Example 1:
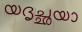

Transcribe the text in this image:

യദൃച്ഛയാ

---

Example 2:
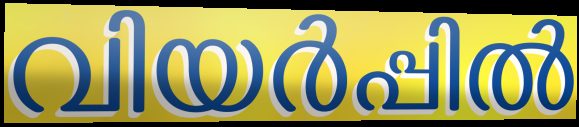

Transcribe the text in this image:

വിയർപ്പിൽ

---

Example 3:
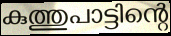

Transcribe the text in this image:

കുത്തുപാട്ടിന്റെ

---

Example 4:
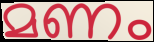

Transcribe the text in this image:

മണം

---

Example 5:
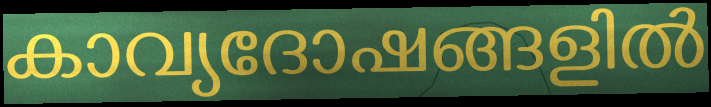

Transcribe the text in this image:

കാവ്യദോഷങ്ങളിൽ